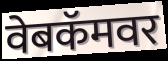
वेबकॅमवर